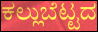
ಕಲ್ಲುಬೆಟ್ಟದ